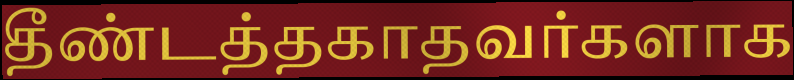
தீண்டத்தகாதவர்களாக